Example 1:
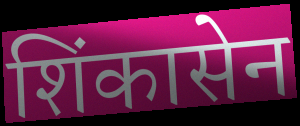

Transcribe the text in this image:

शिंकासेन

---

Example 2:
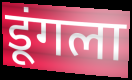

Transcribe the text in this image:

डूंगला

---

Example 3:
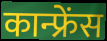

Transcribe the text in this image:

कान्फ्रेंस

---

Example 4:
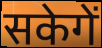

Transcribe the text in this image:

सकेगें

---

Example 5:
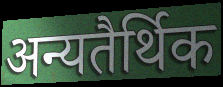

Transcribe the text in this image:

अन्यतैर्थिक